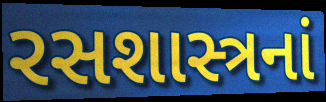
રસશાસ્ત્રનાં